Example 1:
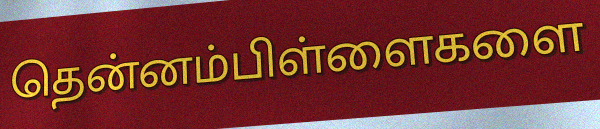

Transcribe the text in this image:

தென்னம்பிள்ளைகளை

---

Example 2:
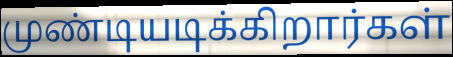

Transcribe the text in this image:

முண்டியடிக்கிறார்கள்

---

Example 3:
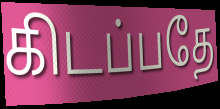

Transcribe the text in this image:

கிடப்பதே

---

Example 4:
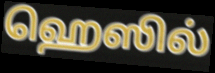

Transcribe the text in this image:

ஹெஸில்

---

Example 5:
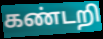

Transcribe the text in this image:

கண்டறி